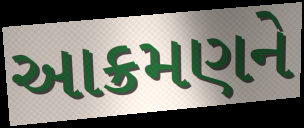
આક્રમણને